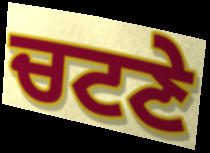
ਚਟਣੇ